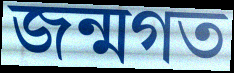
জন্মগত